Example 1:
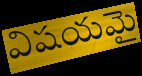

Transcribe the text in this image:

విషయమై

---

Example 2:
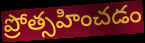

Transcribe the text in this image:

ప్రోత్సహించడం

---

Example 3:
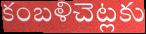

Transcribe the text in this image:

కంబళిచెట్లకు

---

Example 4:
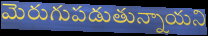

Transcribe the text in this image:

మెరుగుపడుతున్నాయని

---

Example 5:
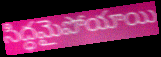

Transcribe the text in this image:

సిద్ధమైపోయాయి